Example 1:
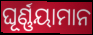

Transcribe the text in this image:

ଘୂର୍ଣ୍ଣୟାମାନ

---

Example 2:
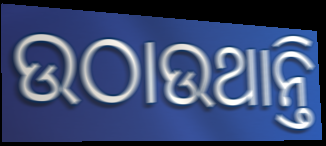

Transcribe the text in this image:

ଉଠାଉଥାନ୍ତି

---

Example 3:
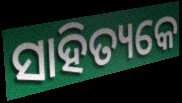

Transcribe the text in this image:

ସାହିତ୍ୟକେ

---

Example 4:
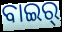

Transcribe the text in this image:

ବାଇର୍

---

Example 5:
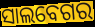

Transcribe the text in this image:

ସାଲବେଗର